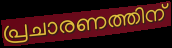
പ്രചാരണത്തിന്